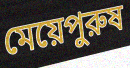
মেয়েপুরুষ